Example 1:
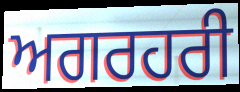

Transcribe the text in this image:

ਅਗਰਹਰੀ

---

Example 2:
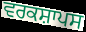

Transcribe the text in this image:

ਵਰਕਸ਼ਾਪਸ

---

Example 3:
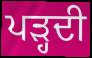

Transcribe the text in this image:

ਪਡ਼੍ਹਦੀ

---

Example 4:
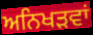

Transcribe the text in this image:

ਅਨਿਖੜਵਾਂ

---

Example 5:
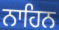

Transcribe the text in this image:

ਨਾਹਿਨ